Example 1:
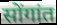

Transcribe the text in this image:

सोंगांत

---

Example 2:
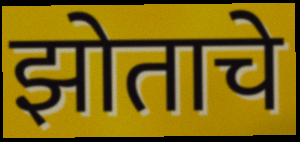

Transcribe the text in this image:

झोताचे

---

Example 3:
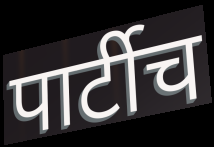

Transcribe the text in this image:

पार्टीच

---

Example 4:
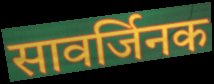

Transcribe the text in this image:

सावर्जिनक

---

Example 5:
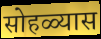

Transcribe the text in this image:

सोहळ्यास